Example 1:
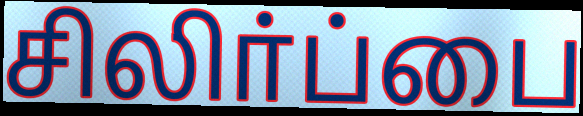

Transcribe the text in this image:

சிலிர்ப்பை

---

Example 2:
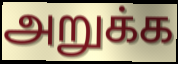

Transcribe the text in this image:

அறுக்க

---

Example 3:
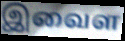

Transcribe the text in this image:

இவைள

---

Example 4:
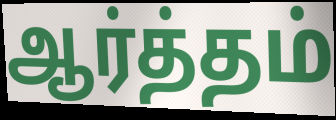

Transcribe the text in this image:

ஆர்த்தம்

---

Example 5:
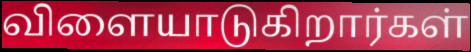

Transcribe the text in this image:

விளையாடுகிறார்கள்